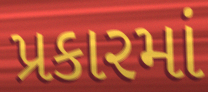
પ્રકારમાં